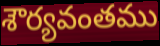
శౌర్యవంతము